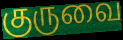
குருவை